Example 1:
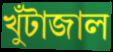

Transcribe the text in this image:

খুঁটাজাল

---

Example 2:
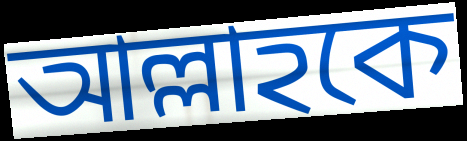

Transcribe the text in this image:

আল্লাহকে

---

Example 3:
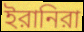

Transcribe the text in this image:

ইরানিরা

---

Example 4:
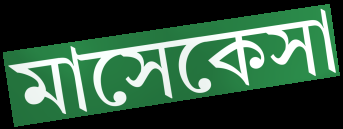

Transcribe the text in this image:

মাসেকেসা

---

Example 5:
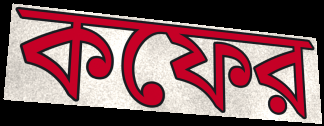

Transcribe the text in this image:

কফের